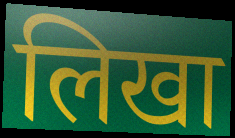
लिखा